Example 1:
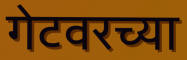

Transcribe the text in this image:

गेटवरच्या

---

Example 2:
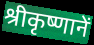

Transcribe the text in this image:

श्रीकृष्णानें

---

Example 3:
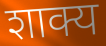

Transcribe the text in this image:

शाक्य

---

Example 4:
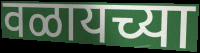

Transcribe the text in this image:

वळायच्या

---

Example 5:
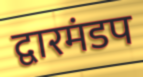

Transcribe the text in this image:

द्वारमंडप